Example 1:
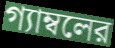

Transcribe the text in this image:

গ্যাম্বলের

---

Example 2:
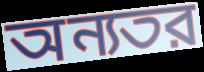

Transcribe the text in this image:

অন্যতর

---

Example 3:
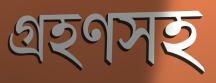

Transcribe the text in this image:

গ্রহণসহ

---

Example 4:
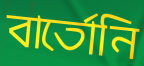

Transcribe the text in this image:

বার্তোনি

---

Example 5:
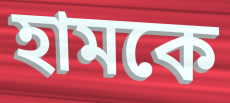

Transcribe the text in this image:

হামকে